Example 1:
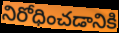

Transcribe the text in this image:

నిరోధించడానికి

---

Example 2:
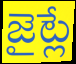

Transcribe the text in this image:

జైట్లే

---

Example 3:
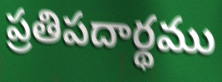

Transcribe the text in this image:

ప్రతిపదార్థము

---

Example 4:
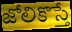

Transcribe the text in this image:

జోలికొస్తే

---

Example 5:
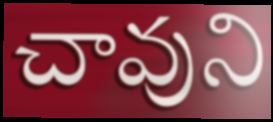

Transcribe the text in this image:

చావుని